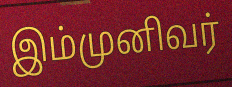
இம்முனிவர்